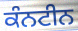
ਕੰਨਟੀਨ